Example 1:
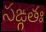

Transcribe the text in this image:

సఙ్గతః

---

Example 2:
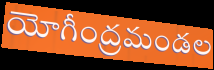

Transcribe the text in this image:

యోగీంద్రమండల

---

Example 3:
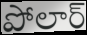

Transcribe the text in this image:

పోలార్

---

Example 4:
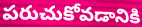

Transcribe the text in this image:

పరుచుకోవడానికి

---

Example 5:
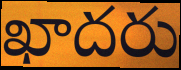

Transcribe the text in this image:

ఖాదరు